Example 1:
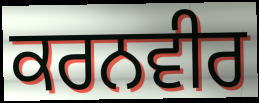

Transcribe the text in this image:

ਕਰਨਵੀਰ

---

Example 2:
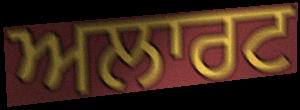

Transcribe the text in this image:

ਅਲਾਰਟ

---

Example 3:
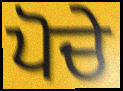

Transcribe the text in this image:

ਪੋਚੇ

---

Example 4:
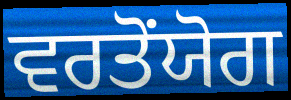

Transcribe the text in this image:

ਵਰਤੋਂਯੋਗ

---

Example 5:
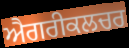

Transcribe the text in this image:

ਐਗਰੀਕਲਚਰ